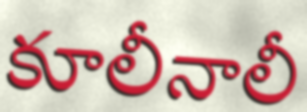
కూలీనాలీ